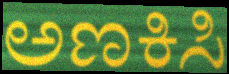
ಅಣಕಿಸಿ